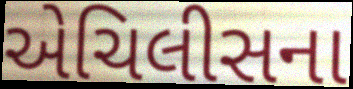
એચિલીસના